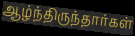
ஆழ்ந்திருந்தார்கள்